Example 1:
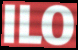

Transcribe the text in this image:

ILO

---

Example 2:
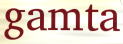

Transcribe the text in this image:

gamta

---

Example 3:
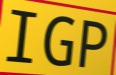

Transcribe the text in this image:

IGP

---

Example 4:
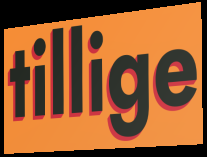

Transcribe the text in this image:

tillige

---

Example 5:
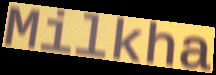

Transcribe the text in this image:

Milkha